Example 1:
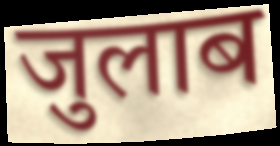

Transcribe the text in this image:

जुलाब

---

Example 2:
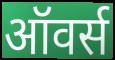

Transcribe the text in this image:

ऑवर्स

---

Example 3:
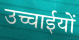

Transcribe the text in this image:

उच्चाईयों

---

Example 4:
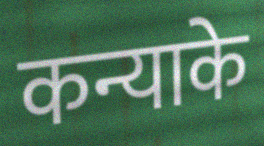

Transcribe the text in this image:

कन्याके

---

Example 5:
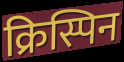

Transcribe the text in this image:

क्रिस्पिन